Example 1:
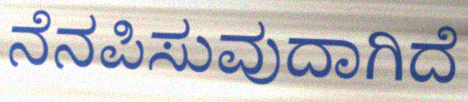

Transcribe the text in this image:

ನೆನಪಿಸುವುದಾಗಿದೆ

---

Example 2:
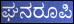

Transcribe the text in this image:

ಘನರೂಪಿ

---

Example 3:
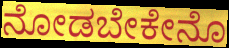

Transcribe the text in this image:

ನೋಡಬೇಕೇನೊ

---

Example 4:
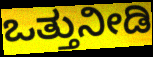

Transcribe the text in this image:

ಒತ್ತುನೀಡಿ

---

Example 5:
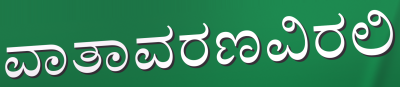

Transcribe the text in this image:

ವಾತಾವರಣವಿರಲಿ